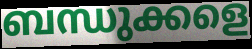
ബന്ധുക്കളെ